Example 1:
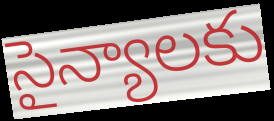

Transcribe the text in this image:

సైన్యాలకు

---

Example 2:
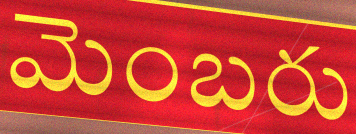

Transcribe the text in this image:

మెంబరు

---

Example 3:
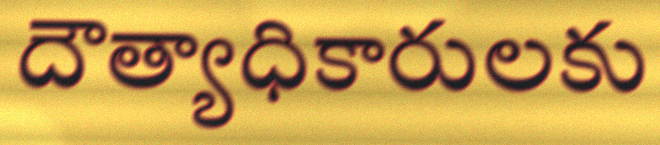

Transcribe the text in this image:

దౌత్యాధికారులకు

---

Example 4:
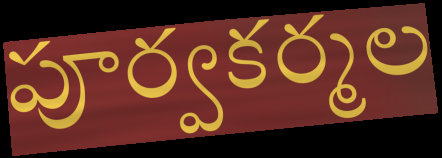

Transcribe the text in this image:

పూర్వకర్మల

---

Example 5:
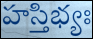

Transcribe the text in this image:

హస్తిభ్యః